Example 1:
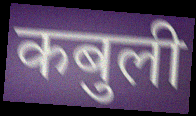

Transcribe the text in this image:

कबुली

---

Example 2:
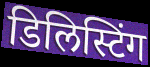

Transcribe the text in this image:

डिलिस्टिंग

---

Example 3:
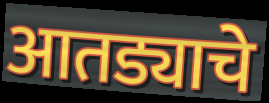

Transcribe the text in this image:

आतड्याचे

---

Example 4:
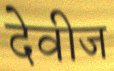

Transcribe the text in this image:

देवीज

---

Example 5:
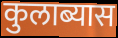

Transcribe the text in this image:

कुलाब्यास